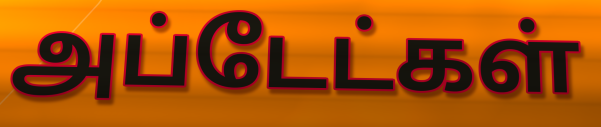
அப்டேட்கள்